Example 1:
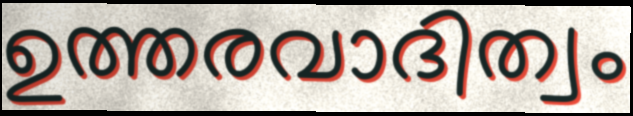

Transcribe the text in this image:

ഉത്തരവാദിത്വം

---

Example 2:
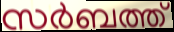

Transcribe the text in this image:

സർബത്ത്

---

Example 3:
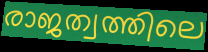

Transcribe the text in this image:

രാജത്വത്തിലെ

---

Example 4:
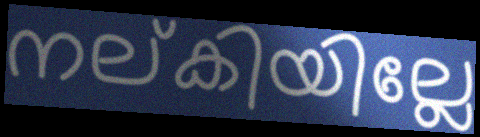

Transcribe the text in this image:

നല്കിയില്ലേ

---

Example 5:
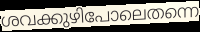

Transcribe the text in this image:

ശവക്കുഴിപോലെതന്നെ